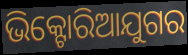
ଭିକ୍ଟୋରିଆଯୁଗର